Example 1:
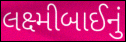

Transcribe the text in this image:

લક્ષ્મીબાઈનું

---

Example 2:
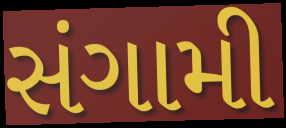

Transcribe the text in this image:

સંગામી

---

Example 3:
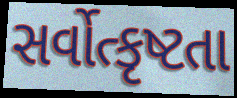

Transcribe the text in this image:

સર્વોત્કૃષ્ટતા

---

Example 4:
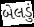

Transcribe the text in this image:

બેલડું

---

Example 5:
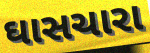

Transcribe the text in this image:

ઘાસચારા